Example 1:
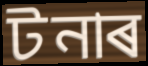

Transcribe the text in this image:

টনাৰ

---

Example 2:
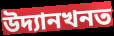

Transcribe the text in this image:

উদ্যানখনত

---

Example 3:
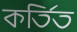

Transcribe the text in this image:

কৰ্তিত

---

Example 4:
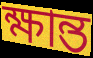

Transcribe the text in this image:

ক্ষান্ত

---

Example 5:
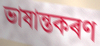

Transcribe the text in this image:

ভাষান্তকৰণ